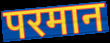
परमान